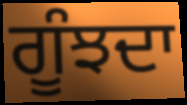
ਗੂੰਝਦਾ